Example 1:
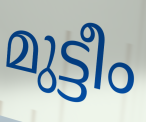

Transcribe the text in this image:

മുട്ടീം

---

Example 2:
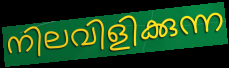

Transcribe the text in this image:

നിലവിളിക്കുന്ന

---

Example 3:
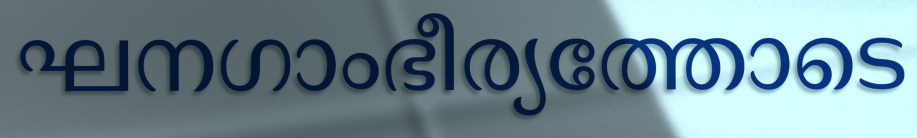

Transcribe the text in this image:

ഘനഗാംഭീര്യത്തോടെ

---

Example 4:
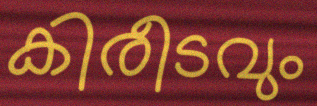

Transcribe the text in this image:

കിരീടവും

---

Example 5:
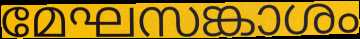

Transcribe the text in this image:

മേഘസങ്കാശം